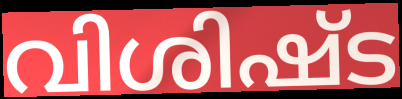
വിശിഷ്ട